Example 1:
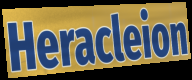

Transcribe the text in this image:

Heracleion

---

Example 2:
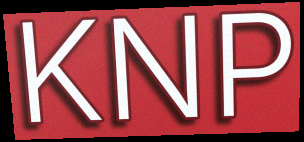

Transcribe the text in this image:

KNP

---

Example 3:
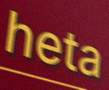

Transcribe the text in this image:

heta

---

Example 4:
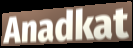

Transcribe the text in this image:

Anadkat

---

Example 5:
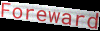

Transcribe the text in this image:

Foreward